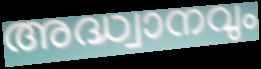
അദ്ധ്വാനവും